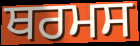
ਥਰਮਸ